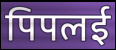
पिपलई